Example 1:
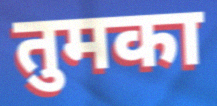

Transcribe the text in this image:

तुमका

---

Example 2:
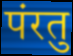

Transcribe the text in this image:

पंरतु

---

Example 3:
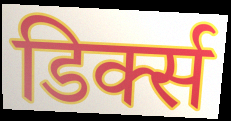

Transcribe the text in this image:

डिर्क्स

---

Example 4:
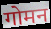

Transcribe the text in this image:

गोमन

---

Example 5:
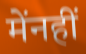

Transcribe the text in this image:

मेंनहीं